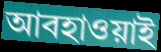
আবহাওয়াই